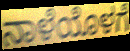
ನಾಳೆಯೊಳಗೆ